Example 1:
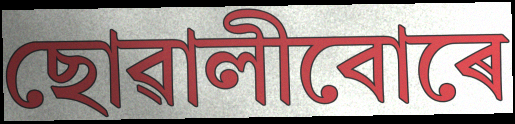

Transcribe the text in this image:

ছোৱালীবোৰে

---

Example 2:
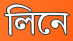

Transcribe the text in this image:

লিনে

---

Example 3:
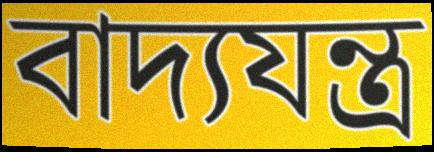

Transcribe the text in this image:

বাদ্যযন্ত্ৰ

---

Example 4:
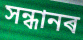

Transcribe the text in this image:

সন্ধানৰ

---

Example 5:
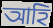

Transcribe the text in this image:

আহি